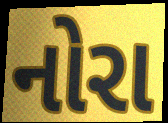
નોરા